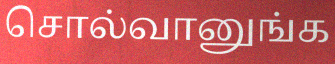
சொல்வானுங்க